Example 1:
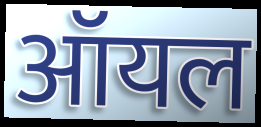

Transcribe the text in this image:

ऑयल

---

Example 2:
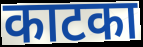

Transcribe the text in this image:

काटका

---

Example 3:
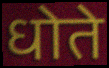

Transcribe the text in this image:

धोते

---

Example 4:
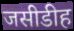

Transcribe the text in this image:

जसीडीह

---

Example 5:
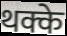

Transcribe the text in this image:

थक्के